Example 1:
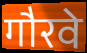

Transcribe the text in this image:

गौरवे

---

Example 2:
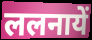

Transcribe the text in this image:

ललनायें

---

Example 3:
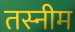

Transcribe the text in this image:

तस्नीम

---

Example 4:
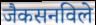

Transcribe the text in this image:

जैकसनविले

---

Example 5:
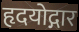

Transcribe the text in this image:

हृदयोद्गार